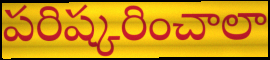
పరిష్కరించాలా